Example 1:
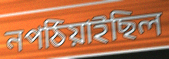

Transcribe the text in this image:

নপঠিয়াইছিল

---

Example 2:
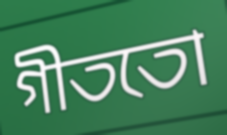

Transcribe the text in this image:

গীততো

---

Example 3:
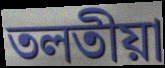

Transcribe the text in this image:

তলতীয়া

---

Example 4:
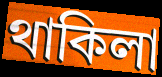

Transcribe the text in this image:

থাকিলা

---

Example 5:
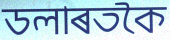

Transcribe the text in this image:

ডলাৰতকৈ